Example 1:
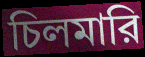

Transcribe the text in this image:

চিলমারি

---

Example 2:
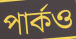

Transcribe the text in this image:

পার্কও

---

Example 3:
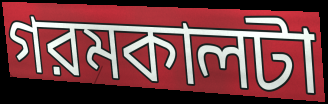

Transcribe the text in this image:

গরমকালটা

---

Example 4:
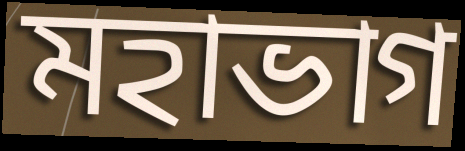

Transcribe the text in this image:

মহাভাগ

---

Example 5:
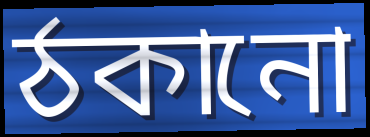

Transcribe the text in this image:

ঠকানো